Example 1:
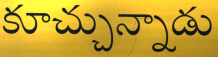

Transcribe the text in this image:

కూచ్చున్నాడు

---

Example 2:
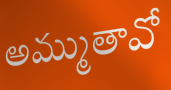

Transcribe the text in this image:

అమ్ముతావో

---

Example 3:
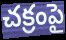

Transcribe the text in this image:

చక్రంపై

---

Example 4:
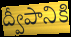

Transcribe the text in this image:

ద్వీపానికి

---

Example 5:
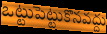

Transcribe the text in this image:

ఒట్టుపెట్టుకొనవద్దు